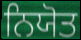
ਨਿਯੋਤ